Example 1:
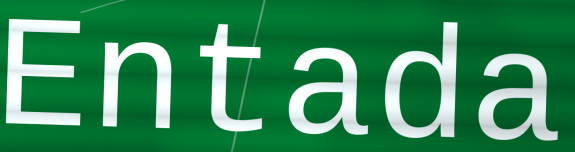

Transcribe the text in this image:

Entada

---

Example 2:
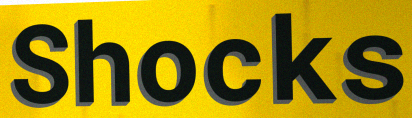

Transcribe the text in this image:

Shocks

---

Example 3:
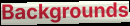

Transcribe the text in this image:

Backgrounds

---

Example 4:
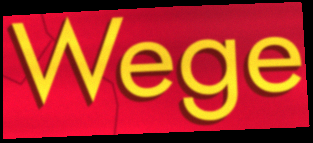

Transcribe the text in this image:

Wege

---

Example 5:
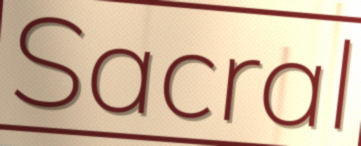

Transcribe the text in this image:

Sacral